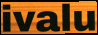
ivalu